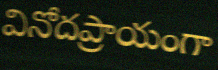
వినోదప్రాయంగా